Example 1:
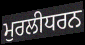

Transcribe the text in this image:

ਮੁਰਲੀਧਰਨ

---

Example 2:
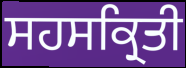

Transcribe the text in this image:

ਸਹਸਕ੍ਰਿਤੀ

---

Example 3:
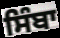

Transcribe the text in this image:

ਸਿੰਬਾ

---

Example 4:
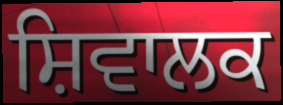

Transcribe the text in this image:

ਸ਼ਿਵਾਲਕ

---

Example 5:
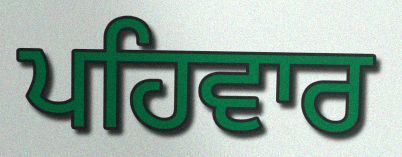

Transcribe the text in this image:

ਪਹਿਵਾਰ